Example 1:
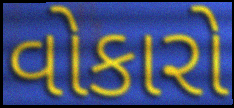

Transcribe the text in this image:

વોકારો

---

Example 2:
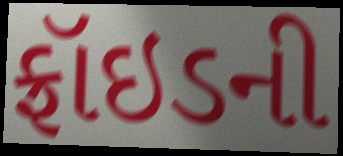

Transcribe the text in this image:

ફ્રૉઇડની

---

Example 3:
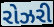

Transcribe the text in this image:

રોઝરી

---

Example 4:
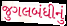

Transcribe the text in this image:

જુગલબંધીનું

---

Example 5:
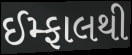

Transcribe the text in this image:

ઈમ્ફાલથી